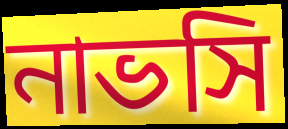
নাভসি